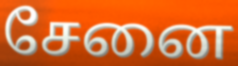
சேனை